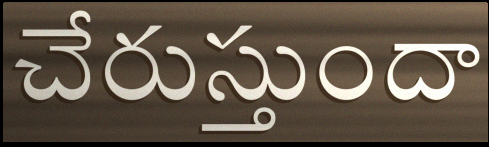
చేరుస్తుందా